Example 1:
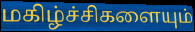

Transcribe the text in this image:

மகிழ்ச்சிகளையும்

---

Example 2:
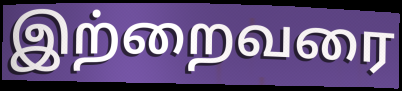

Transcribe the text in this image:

இற்றைவரை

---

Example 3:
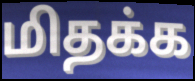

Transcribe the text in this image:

மிதக்க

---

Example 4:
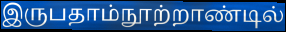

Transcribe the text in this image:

இருபதாம்நூற்றாண்டில்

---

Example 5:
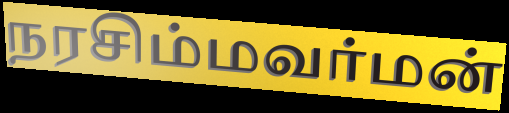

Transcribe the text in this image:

நரசிம்மவர்மன்